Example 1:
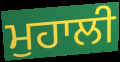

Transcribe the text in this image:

ਮੁਹਾਲੀ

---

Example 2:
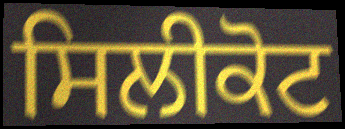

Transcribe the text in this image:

ਸਿਲੀਕੋਟ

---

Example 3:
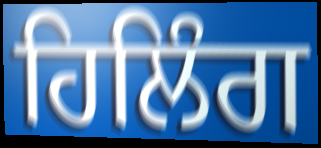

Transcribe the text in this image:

ਹਿਲਿੰਗ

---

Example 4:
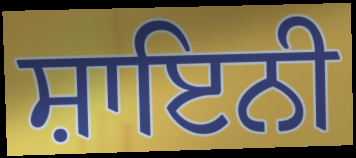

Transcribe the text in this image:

ਸ਼ਾਇਨੀ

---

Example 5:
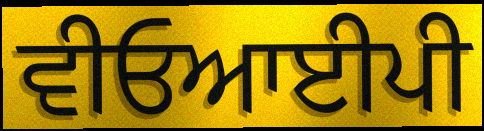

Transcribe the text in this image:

ਵੀਓਆਈਪੀ